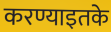
करण्याइतके